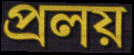
প্ৰলয়